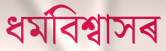
ধৰ্মবিশ্বাসৰ